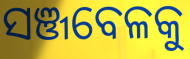
ସଞ୍ଜବେଳକୁ